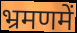
भ्रमणमें